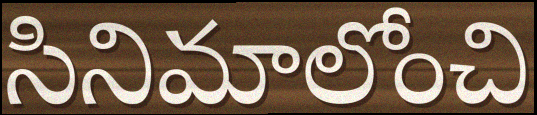
సినిమాలోంచి